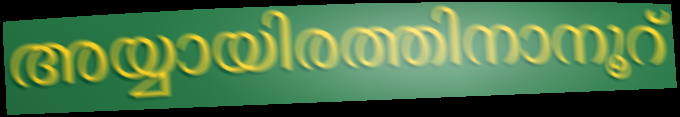
അയ്യായിരത്തിനാനൂറ്